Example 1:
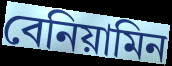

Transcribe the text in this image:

বেনিয়ামিন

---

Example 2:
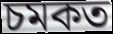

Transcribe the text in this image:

চমকত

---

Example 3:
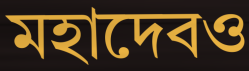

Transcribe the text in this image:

মহাদেবও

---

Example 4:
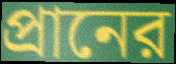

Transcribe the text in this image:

প্রানের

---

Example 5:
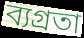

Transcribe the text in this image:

ব্যগ্রতা